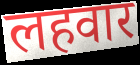
लहवार